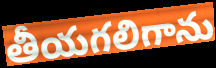
తీయగలిగాను